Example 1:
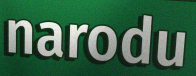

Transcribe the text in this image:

narodu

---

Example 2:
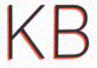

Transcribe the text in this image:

KB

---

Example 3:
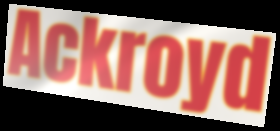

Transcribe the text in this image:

Ackroyd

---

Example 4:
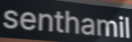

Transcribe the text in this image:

senthamil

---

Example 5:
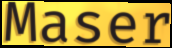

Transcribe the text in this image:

Maser